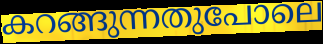
കറങ്ങുന്നതുപോലെ